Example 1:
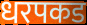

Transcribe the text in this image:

धरपकड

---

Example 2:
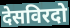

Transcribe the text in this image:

देसविरदो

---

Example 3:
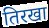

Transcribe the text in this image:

तिरखा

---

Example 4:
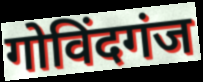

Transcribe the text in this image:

गोविंदगंज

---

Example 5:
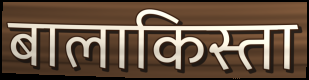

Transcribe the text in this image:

बालाकिस्ता